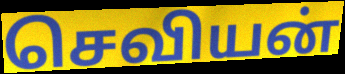
செவியன்